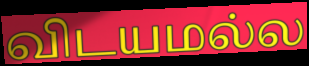
விடயமல்ல